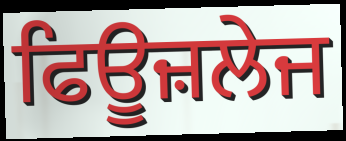
ਫਿਊਜ਼ਲੇਜ